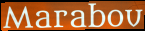
Marabou